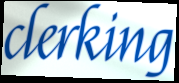
clerking